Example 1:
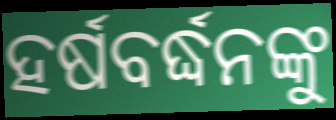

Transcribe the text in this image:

ହର୍ଷବର୍ଦ୍ଧନଙ୍କୁ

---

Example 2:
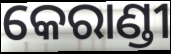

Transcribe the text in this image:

କେରାଣ୍ଡୀ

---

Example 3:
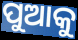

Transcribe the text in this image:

ପୁଆକୁ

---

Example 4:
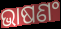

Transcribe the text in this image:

ଭାଷଣଂ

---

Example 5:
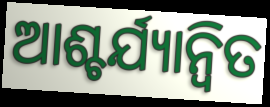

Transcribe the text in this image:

ଆଶ୍ଚର୍ଯ୍ୟାନ୍ୱିତ